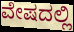
ವೇಷದಲ್ಲಿ